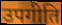
उपगीति